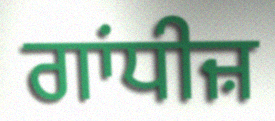
ਗਾਂਧੀਜ਼